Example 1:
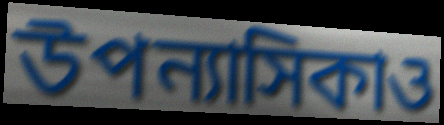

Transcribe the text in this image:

উপন্যাসিকাও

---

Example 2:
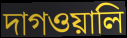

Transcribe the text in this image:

দাগওয়ালি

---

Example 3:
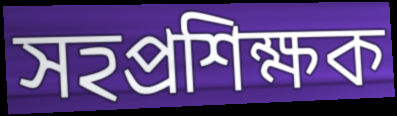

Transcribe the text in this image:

সহপ্রশিক্ষক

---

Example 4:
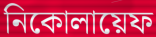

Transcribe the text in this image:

নিকোলায়েফ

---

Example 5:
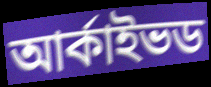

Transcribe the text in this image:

আর্কাইভড